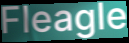
Fleagle